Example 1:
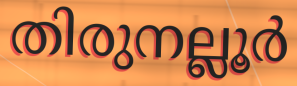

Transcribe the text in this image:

തിരുനല്ലൂർ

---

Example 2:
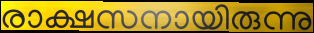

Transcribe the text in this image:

രാക്ഷസനായിരുന്നു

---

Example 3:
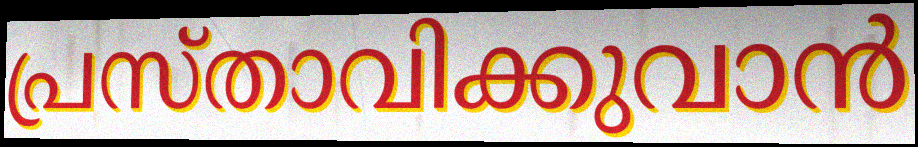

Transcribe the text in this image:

പ്രസ്താവിക്കുവാൻ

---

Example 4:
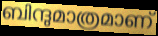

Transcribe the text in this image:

ബിന്ദുമാത്രമാണ്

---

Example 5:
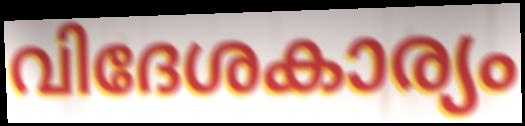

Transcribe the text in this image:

വിദേശകാര്യം